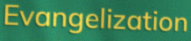
Evangelization